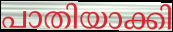
പാതിയാക്കി